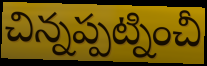
చిన్నప్పట్నించీ